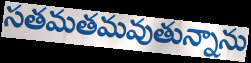
సతమతమవుతున్నాను